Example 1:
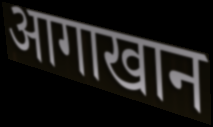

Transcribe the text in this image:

आगाखान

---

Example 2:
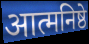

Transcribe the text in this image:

आत्मनिष्ठे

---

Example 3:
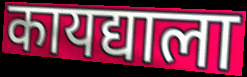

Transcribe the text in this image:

कायद्याला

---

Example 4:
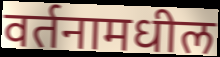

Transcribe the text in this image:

वर्तनामधील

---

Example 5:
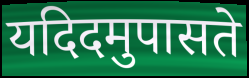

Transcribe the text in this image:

यदिदमुपासते